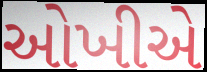
ઓખીએ